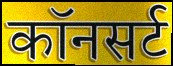
कॉनसर्ट